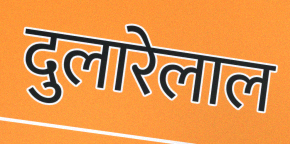
दुलारेलाल